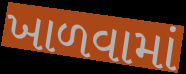
ખાળવામાં